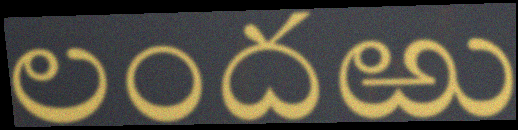
లందఱు